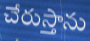
చేరుస్తాను